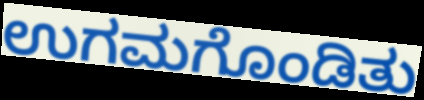
ಉಗಮಗೊಂಡಿತು